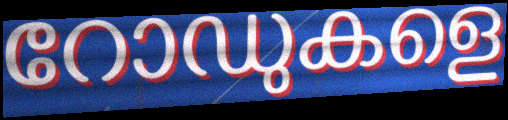
റോഡുകളെ